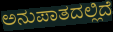
ಅನುಪಾತದಲ್ಲಿದೆ